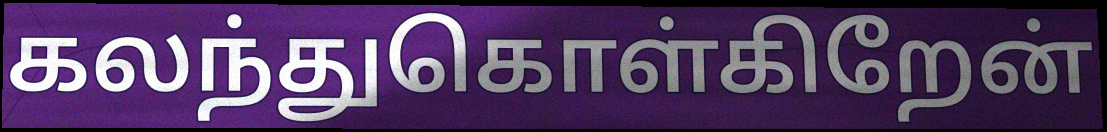
கலந்துகொள்கிறேன்